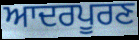
ਆਦਰਪੂਰਣ